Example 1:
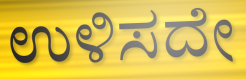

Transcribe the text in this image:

ಉಳಿಸದೇ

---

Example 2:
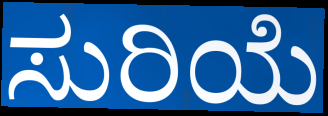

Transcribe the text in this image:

ಸುರಿಯೆ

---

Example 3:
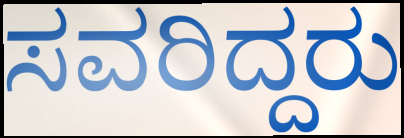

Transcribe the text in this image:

ಸವರಿದ್ದರು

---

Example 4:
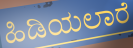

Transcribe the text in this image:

ಹಿಡಿಯಲಾರೆ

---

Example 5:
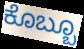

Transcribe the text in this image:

ಕೊಬ್ಬೂ